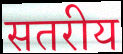
सतरीय